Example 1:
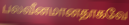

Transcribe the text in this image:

பலவீனமானதாகவே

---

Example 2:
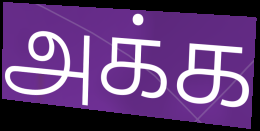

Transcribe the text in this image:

அக்க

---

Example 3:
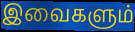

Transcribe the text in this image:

இவைகளும்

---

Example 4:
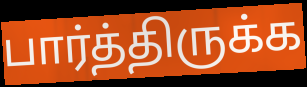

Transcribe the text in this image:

பார்த்திருக்க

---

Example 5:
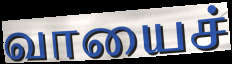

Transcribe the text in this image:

வாயைச்